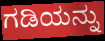
ಗಡಿಯನ್ನು